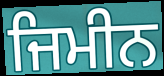
ਜਿਮੀਨ